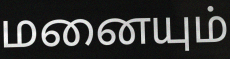
மனையும்